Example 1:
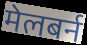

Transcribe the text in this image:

मेलबर्न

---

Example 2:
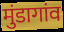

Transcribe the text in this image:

मुंडागांव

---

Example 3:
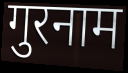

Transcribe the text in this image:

गुरनाम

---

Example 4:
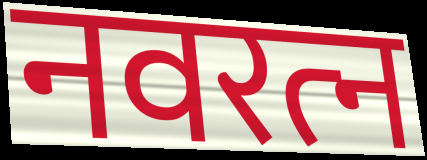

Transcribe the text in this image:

नवरत्‍न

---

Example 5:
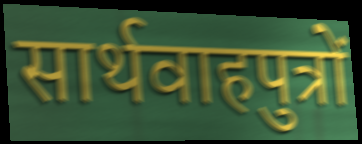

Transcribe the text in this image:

सार्थवाहपुत्रों